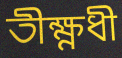
তীক্ষ্ণধী